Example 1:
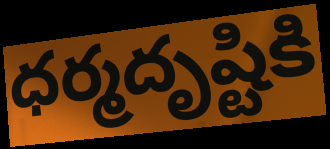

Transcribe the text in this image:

ధర్మదృష్టికి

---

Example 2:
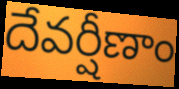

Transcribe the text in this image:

దేవర్షీణాం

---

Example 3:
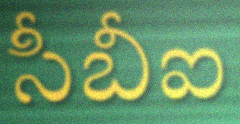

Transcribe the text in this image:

సీబీఐ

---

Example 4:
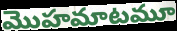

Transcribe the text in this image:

మొహమాటమూ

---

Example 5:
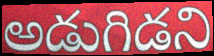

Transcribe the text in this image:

అడుగిడని